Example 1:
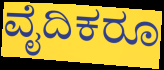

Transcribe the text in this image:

ವೈದಿಕರೂ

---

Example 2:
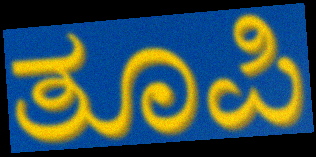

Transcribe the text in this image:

ತೂಪಿ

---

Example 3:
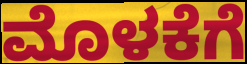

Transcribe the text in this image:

ಮೊಳಕೆಗೆ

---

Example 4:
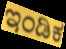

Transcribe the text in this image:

ಇಂಡಿಕ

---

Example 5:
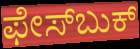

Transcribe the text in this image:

ಫೇಸ್‌ಬುಕ್